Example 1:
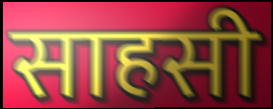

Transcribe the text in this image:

साहसी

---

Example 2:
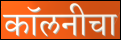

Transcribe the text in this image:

कॉलनीचा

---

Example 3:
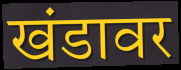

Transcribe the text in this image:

खंडावर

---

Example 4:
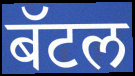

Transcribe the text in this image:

बॅटल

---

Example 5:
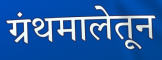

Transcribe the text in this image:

ग्रंथमालेतून